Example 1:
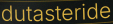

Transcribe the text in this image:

dutasteride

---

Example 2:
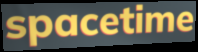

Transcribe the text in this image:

spacetime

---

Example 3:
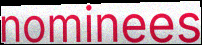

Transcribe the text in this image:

nominees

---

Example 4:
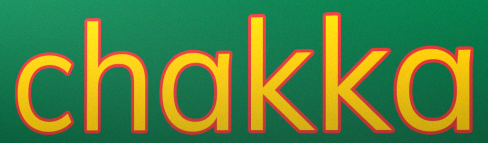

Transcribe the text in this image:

chakka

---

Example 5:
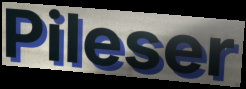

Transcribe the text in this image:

Pileser